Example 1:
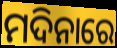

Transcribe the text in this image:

ମଦିନାରେ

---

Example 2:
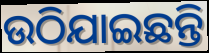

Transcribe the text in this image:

ଉଠିଯାଇଛନ୍ତି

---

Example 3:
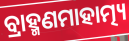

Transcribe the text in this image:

ବ୍ରାହ୍ମଣମାହାତ୍ମ୍ୟ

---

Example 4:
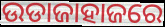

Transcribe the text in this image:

ଉଡାଜାହାଜରେ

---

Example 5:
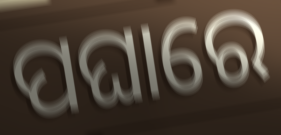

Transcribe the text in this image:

ପଘାରେ